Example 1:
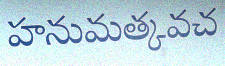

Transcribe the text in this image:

హనుమత్కవచ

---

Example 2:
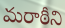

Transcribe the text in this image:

మరాఠీని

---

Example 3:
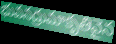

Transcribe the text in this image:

భువనద్రుమాకృతివైన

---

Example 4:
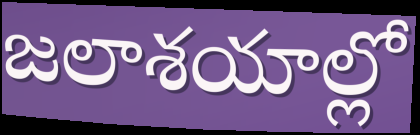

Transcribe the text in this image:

జలాశయాల్లో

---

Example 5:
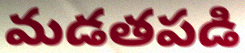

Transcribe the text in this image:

మడతపడి